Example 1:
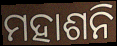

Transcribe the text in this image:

ମହାଶନି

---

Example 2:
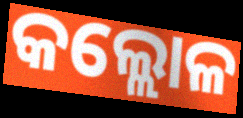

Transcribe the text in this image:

କଲ୍ଲୋଳ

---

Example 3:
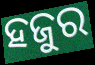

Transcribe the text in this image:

ହଜୁର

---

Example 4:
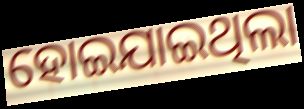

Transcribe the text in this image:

ହୋଇଯାଇଥିଲା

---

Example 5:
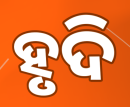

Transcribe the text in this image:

ହୃଦି